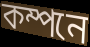
কম্পনে